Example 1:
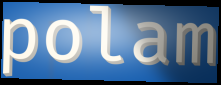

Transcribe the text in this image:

polam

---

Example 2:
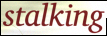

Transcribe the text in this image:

stalking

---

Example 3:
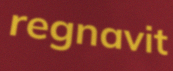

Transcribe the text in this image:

regnavit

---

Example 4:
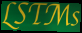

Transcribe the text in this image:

LSTMs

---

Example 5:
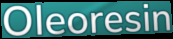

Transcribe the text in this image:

Oleoresin